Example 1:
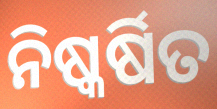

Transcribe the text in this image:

ନିଷ୍କର୍ଷିତ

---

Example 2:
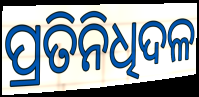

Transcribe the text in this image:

ପ୍ରତିନିଧିଦଳ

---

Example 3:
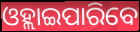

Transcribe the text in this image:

ଓହ୍ଲାଇପାରିବେ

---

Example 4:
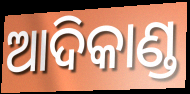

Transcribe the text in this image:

ଆଦିକାଣ୍ଡ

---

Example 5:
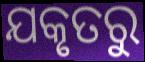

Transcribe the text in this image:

ଯକୃତରୁ